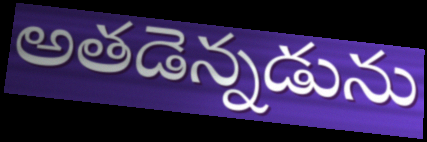
అతడెన్నడును